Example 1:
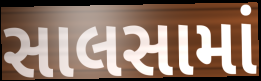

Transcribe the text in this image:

સાલસામાં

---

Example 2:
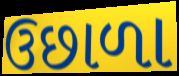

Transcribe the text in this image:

ઉછાળા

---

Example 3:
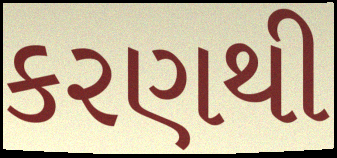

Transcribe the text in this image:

કરણથી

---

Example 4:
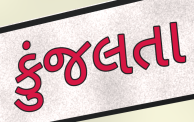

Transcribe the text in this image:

કુંજલતા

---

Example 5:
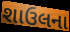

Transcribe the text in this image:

શાઉલના